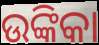
ଉଙ୍କିକା